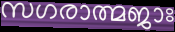
സഗരാത്മജാഃ